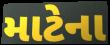
માટેના